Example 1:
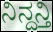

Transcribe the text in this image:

ನಿನ್ದನ್ತಿ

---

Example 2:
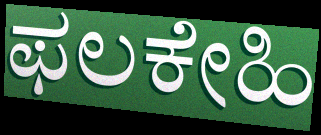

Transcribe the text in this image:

ಫಲಕೇಹಿ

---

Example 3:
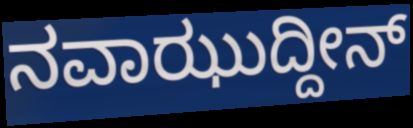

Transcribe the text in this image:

ನವಾಝುದ್ದೀನ್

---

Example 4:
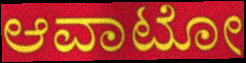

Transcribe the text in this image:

ಆವಾಟೋ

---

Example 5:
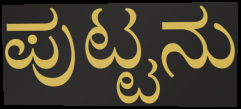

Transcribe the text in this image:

ಪುಟ್ಟನು